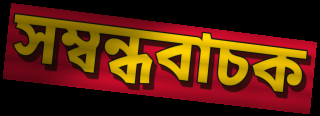
সম্বন্ধবাচক